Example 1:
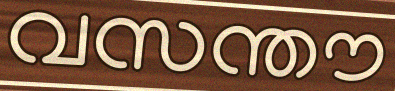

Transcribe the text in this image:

വസന്തൗ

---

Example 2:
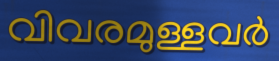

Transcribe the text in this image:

വിവരമുള്ളവർ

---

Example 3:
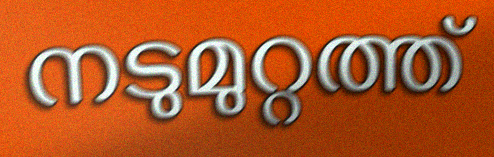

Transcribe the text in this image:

നടുമുറ്റത്ത്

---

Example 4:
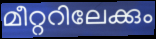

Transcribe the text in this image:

മീറ്ററിലേക്കും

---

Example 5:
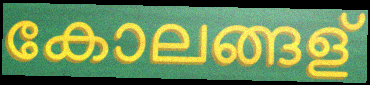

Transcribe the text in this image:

കോലങ്ങള്